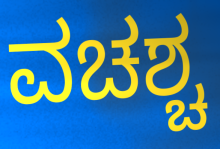
ವಚಶ್ಚ